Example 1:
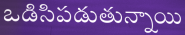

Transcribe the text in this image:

ఒడిసిపడుతున్నాయి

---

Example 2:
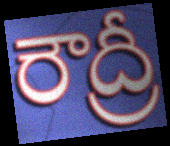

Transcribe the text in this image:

రౌద్రీ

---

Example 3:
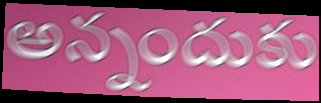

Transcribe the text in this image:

అన్నందుకు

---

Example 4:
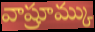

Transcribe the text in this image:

వాష్రూమ్కు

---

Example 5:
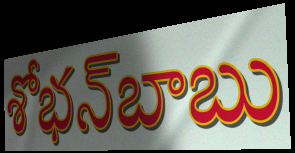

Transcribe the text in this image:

శోభన్‌బాబు